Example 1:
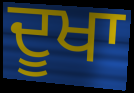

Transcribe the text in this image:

ਦੂਖਾ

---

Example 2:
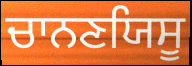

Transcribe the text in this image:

ਚਾਨਣਯਿਸੂ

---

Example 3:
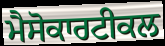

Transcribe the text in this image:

ਮੈਸੋਕਾਰਟੀਕਲ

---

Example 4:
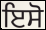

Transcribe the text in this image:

ਇਸੋ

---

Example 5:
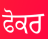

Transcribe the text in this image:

ਫੋਕਰ